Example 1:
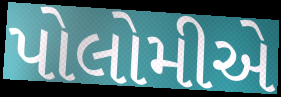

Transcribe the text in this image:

પોલોમીએ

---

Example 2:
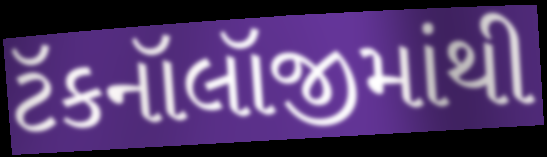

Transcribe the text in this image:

ટૅકનૉલૉજીમાંથી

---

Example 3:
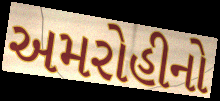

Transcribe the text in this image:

અમરોહીનો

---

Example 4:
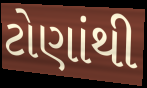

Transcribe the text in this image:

ટોણાંથી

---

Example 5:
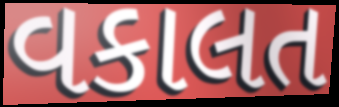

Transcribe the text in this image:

વકાલત